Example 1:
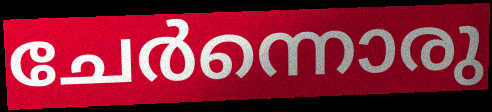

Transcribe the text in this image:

ചേർന്നൊരു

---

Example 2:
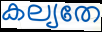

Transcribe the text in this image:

കല്യതേ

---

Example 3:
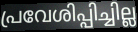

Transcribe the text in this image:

പ്രവേശിപ്പിച്ചില്ല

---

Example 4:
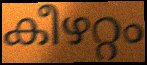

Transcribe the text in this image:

കീഴറ്റം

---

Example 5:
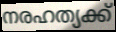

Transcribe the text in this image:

നരഹത്യക്ക്